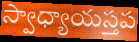
స్వాధ్యాయస్తప